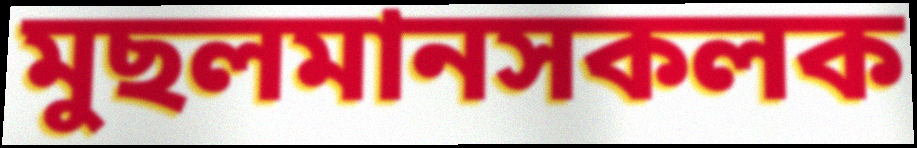
মুছলমানসকলক